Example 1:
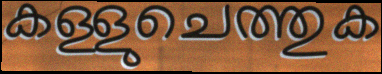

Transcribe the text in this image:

കള്ളുചെത്തുക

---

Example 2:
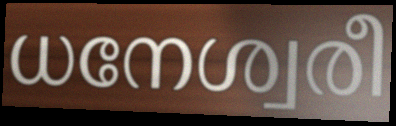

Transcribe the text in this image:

ധനേശ്വരീ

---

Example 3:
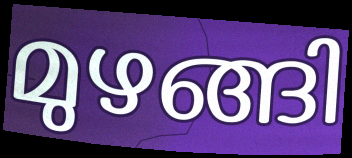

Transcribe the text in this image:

മുഴങ്ങി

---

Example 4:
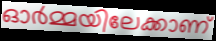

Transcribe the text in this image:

ഓർമ്മയിലേക്കാണ്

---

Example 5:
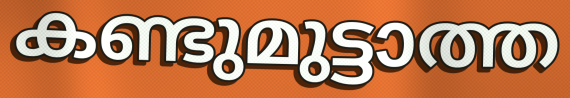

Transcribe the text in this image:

കണ്ടുമുട്ടാത്ത